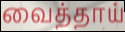
வைத்தாய்